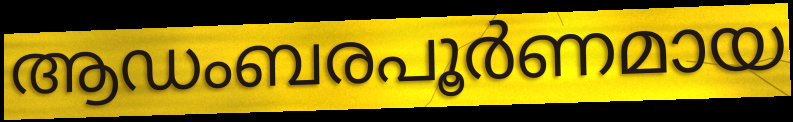
ആഡംബരപൂർണമായ